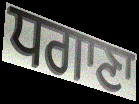
ਧਗਾਣਾ